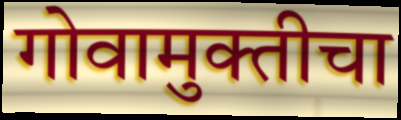
गोवामुक्तीचा